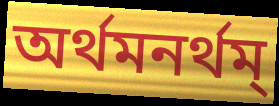
অর্থমনর্থম্